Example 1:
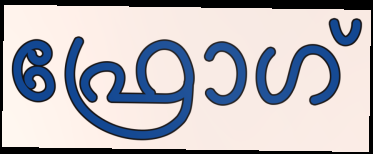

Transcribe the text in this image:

ഫ്രോഗ്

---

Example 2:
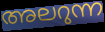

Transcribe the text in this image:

അലറുന്ന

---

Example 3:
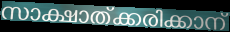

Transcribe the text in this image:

സാക്ഷാത്ക്കരിക്കാന്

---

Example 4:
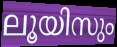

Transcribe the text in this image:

ലൂയിസും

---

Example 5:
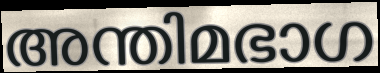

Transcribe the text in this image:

അന്തിമഭാഗ